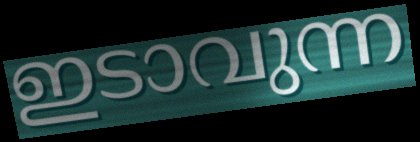
ഇടാവുന്ന